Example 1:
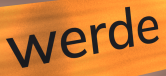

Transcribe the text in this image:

werde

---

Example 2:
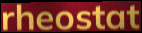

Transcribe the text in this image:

rheostat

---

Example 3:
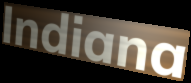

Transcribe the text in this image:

Indiana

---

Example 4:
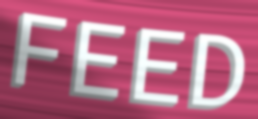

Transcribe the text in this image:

FEED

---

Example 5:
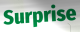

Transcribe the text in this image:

Surprise